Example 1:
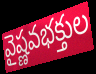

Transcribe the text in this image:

వైష్ణవభక్తుల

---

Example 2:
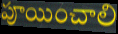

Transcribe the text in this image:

పూయించాలి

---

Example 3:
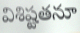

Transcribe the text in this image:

విశిష్టతనూ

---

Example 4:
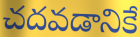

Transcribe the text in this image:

చదవడానికే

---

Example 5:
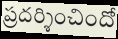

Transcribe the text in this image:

ప్రదర్శించిందో